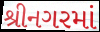
શ્રીનગરમાં